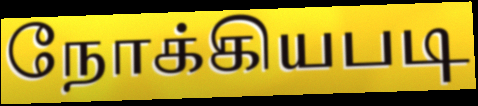
நோக்கியபடி